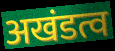
अखंडत्व